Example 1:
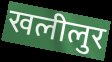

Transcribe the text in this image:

खलीलुर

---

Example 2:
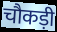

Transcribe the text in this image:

चौकड़ी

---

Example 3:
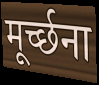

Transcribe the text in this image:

मूर्च्छना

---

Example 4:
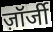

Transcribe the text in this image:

ज़ॉर्जी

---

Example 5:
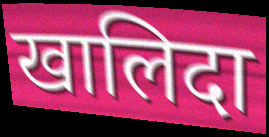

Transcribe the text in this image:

खालिदा